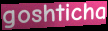
goshticha